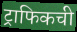
ट्राफिकची